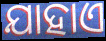
ଯାହାଏ